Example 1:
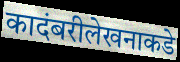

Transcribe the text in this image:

कादंबरीलेखनाकडे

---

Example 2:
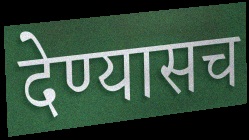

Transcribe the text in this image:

देण्यासच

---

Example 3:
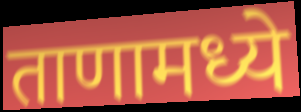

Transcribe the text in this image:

ताणामध्ये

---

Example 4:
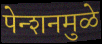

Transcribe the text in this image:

पेन्शनमुळे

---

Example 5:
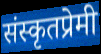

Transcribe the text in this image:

संस्कृतप्रेमी